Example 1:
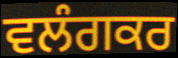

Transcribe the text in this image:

ਵਲੰਗਕਰ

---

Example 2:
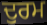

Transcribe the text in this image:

ਦੁਰਮ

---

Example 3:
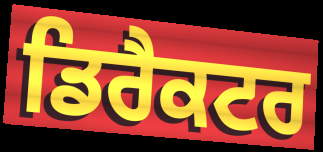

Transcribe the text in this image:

ਡਿਰੈਕਟਰ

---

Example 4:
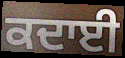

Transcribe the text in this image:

ਕਦਾਈ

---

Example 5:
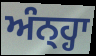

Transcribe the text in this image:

ਅੰਨ੍ਹ੍ਹਾ